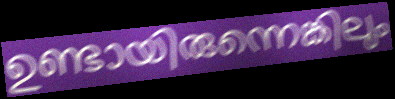
ഉണ്ടായിരുന്നെങ്കിലും